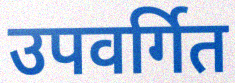
उपवर्गित